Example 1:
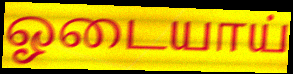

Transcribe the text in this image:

ஓடையாய்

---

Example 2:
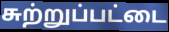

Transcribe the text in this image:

சுற்றுப்பட்டை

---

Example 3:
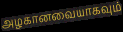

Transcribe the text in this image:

அழகானவையாகவும்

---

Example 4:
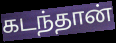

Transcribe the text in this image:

கடந்தான்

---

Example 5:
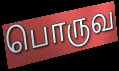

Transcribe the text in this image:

பொருவ